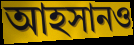
আহসানও